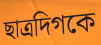
ছাত্রদিগকে